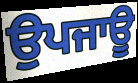
ਉਪਜਾਊ